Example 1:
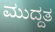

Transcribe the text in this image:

ಮುದ್ದತ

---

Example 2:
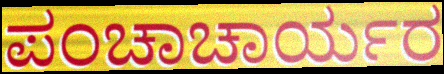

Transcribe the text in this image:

ಪಂಚಾಚಾರ್ಯರ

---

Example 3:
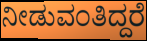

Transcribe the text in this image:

ನೀಡುವಂತಿದ್ದರೆ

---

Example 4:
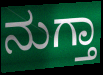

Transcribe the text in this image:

ನುಗ್ತಾ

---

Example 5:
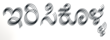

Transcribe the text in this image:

ಇರಿಸಿಕೊಳ್ಳ